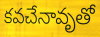
కవచేనావృతో